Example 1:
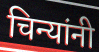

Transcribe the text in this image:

चिन्यांनी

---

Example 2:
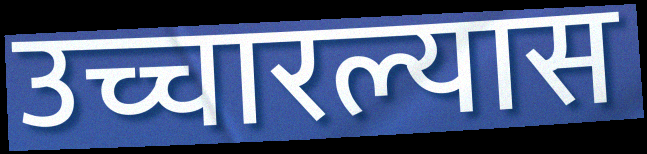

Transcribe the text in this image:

उच्चारल्यास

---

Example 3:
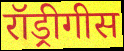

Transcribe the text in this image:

रॉड्रीगीस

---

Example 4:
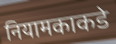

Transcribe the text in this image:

नियामकाकडे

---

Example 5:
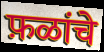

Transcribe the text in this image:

फ़ळांचे